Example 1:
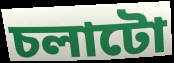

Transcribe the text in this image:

চলাটো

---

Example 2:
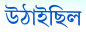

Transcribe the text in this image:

উঠাইছিল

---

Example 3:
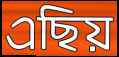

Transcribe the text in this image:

এছিয়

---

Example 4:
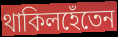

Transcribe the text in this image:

থাকিলহেঁতেন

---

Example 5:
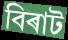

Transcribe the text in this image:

বিৰাট